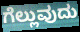
ಗೆಲ್ಲುವುದು